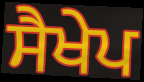
ਸੈਖੇਪ